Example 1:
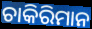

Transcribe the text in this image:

ଚାକିରିମାନ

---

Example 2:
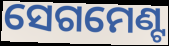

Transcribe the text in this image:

ସେଗମେଣ୍ଟ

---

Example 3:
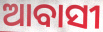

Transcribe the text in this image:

ଆବାସୀ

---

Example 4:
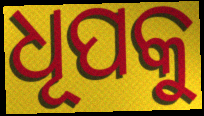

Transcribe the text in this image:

ଧୂପକୁ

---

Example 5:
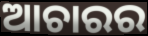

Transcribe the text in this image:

ଆଚାରର